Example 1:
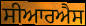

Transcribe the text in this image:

ਸੀਆਰਐਸ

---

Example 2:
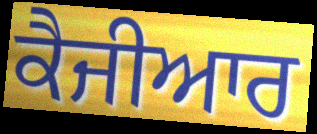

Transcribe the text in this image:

ਕੈਜੀਆਰ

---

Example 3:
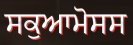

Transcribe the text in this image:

ਸਕੁਆਮੋਸਸ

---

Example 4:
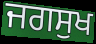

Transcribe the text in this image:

ਜਗਸੁਖ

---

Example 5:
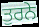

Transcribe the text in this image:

ਤੁਰਨੇ